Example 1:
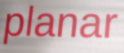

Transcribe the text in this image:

planar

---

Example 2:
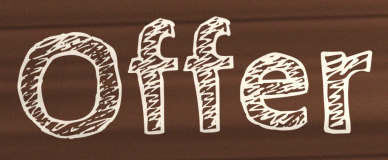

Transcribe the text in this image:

Offer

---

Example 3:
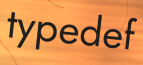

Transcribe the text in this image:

typedef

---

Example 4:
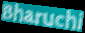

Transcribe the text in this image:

Bharuchi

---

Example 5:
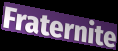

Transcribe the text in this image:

Fraternite